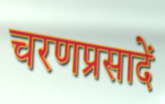
चरणप्रसादें